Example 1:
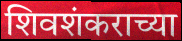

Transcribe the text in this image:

शिवशंकराच्या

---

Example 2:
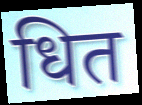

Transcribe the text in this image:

धित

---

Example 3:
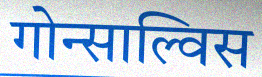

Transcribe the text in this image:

गोन्साल्विस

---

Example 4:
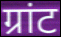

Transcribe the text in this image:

ग्रांट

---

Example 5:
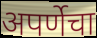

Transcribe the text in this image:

अपर्णेचा